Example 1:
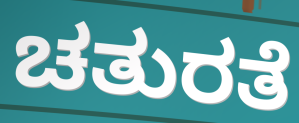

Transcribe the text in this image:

ಚತುರತೆ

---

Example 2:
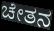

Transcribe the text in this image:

ಚೇತನ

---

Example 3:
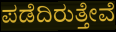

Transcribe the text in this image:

ಪಡೆದಿರುತ್ತೇವೆ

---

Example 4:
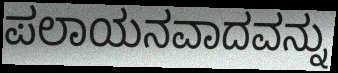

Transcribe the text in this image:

ಪಲಾಯನವಾದವನ್ನು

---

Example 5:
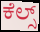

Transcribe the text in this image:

ಕೆಲ್ಸ್